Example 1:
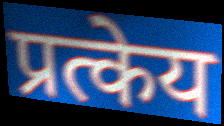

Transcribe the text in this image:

प्रत्केय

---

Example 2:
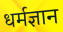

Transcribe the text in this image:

धर्मज्ञान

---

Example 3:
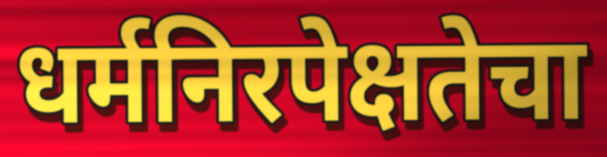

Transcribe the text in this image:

धर्मनिरपेक्षतेचा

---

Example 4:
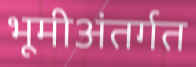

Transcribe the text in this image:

भूमीअंतर्गत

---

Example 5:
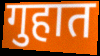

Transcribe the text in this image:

गुहात